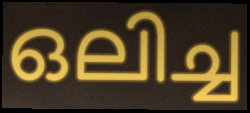
ഒലിച്ച